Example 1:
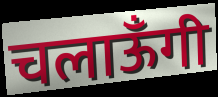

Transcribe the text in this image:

चलाऊँगी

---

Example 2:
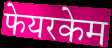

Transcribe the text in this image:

फेयरकेम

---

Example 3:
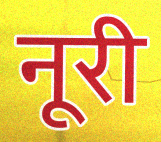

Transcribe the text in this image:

नूरी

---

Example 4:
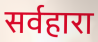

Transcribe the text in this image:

सर्वहारा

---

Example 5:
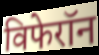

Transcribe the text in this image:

विफेरॉन